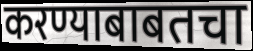
करण्याबाबतचा